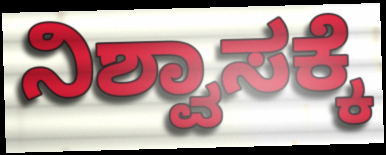
ನಿಶ್ವಾಸಕ್ಕೆ